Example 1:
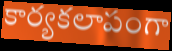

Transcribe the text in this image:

కార్యకలాపంగా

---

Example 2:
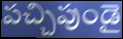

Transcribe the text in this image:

పచ్చిపుండై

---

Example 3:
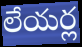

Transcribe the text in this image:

లేయర్ల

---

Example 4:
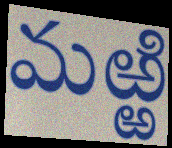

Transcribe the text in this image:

మఱ్ఱి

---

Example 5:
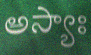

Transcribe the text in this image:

అస్యాః